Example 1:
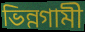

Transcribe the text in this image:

ভিন্নগামী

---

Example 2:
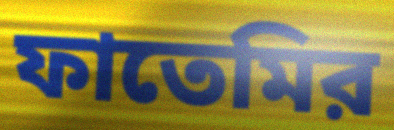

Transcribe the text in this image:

ফাতেমির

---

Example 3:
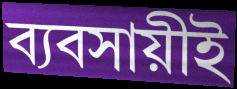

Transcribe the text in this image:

ব্যবসায়ীই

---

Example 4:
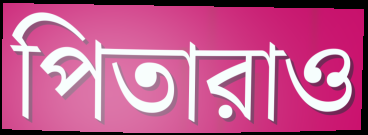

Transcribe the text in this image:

পিতারাও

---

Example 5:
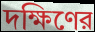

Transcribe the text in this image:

দক্ষিণের